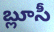
బ్లూసీ